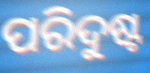
ପରିଦୁଷ୍ଟ